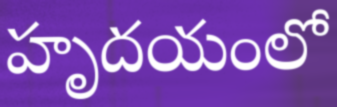
హృదయంలో